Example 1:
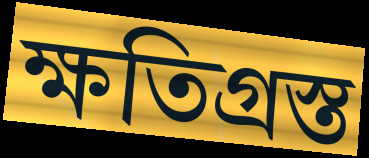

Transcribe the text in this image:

ক্ষতিগ্ৰস্ত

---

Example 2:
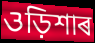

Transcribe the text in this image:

ওড়িশাৰ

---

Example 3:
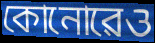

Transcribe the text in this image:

কোনোৱেও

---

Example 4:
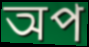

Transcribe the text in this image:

অপ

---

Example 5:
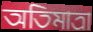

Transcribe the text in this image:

অতিমাত্ৰা